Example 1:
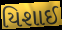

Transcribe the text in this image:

યિશાઈ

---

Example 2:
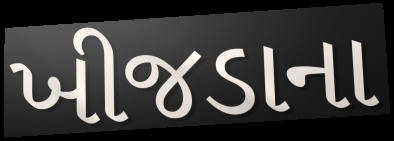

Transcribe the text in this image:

ખીજડાના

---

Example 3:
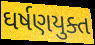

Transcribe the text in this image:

ઘર્ષણયુક્ત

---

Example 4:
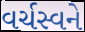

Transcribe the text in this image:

વર્ચસ્વને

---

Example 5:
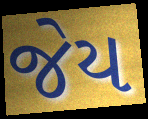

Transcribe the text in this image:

જેય